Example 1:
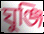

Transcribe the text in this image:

ঘুঞ্জি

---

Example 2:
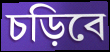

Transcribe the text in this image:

চড়িবে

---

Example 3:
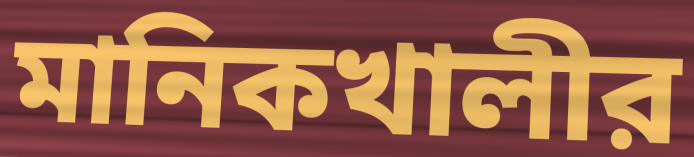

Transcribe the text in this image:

মানিকখালীর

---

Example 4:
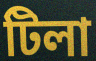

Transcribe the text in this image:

টিলা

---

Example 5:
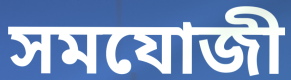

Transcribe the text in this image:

সমযোজী